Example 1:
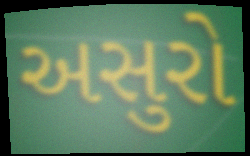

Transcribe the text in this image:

અસુરો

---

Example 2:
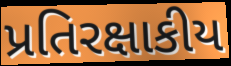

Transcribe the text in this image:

પ્રતિરક્ષાકીય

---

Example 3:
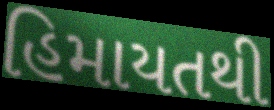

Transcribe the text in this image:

હિમાયતથી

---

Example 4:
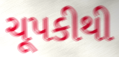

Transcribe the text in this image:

ચૂપકીથી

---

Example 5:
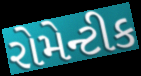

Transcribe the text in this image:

રોમેન્ટીક